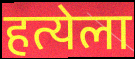
हत्येला